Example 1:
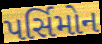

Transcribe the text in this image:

પર્સિમોન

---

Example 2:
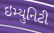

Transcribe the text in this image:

ઇમ્યુનિટી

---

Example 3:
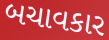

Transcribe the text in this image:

બચાવકાર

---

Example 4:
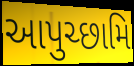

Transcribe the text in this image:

આપુચ્છામિ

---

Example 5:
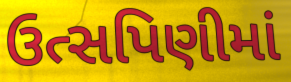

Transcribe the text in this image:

ઉત્સપિણીમાં